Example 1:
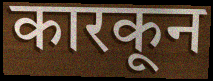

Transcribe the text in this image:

कारकून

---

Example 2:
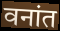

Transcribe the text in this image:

वनांत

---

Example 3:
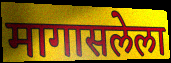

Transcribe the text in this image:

मागासलेला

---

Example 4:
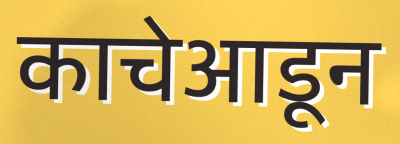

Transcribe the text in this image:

काचेआडून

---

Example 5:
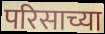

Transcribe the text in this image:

परिसाच्या